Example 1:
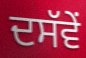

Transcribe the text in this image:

ਦਸੱਵੇਂ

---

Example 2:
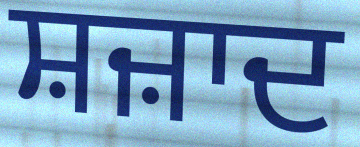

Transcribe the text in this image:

ਸ਼ਜ਼ਾਦ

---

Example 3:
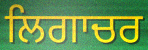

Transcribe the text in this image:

ਲਿਗਾਚਰ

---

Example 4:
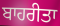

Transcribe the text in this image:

ਬਾਹਰੀਤਾ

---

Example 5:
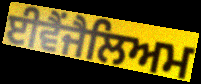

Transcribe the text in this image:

ਈਵੈਂਜੈਲਿਅਮ